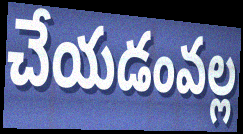
చేయడంవల్ల